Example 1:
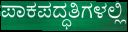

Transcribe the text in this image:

ಪಾಕಪದ್ಧತಿಗಳಲ್ಲಿ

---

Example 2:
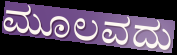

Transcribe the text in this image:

ಮೂಲವದು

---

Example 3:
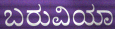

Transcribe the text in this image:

ಬರುವಿಯಾ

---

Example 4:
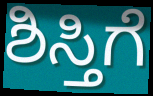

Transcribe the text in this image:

ಶಿಸ್ತಿಗೆ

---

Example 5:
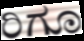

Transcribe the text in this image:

ರಿಗೂ